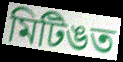
মিটিঙত